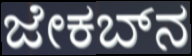
ಜೇಕಬ್‌ನ